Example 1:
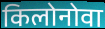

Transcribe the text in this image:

किलोनोवा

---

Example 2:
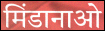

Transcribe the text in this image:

मिंडानाओ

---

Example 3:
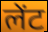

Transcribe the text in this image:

लेंट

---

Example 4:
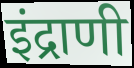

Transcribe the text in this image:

इंद्राणी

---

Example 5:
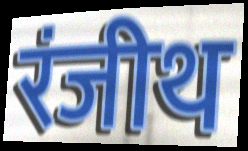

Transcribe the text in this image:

रंजीथ